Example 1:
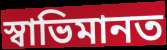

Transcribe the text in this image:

স্বাভিমানত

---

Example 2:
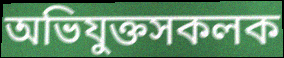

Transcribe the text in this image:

অভিযুক্তসকলক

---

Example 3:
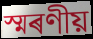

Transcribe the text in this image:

স্মৰণীয়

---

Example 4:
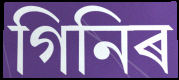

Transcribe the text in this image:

গিনিৰ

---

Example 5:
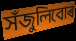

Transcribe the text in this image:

সঁজুলিবোৰ